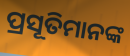
ପ୍ରସୂତିମାନଙ୍କ